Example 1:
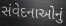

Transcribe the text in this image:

સંવેદનાઓનું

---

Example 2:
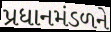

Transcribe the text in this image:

પ્રધાનમંડળને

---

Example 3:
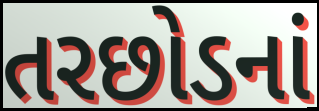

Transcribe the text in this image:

તરછોડનાં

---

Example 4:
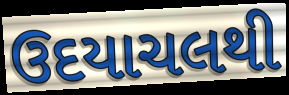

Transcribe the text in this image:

ઉદયાચલથી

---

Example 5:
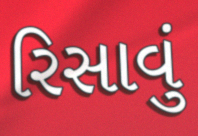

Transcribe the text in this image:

રિસાવું